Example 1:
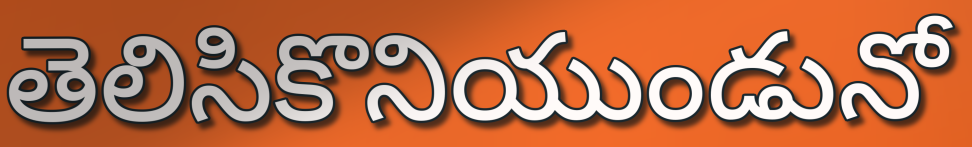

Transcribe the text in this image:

తెలిసికొనియుండునో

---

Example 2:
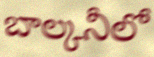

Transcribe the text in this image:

బాల్కనీలో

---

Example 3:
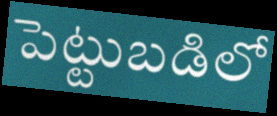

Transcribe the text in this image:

పెట్టుబడిలో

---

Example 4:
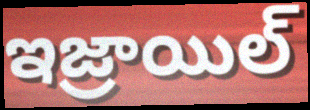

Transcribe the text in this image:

ఇజ్రాయిల్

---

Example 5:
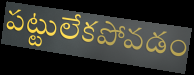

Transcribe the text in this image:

పట్టులేకపోవడం